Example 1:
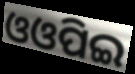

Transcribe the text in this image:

ଓଓପିଇ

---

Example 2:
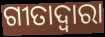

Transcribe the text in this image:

ଗୀତାଦ୍ଵାରା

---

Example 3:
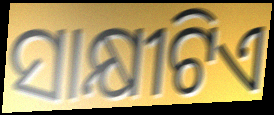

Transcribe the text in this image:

ସାକ୍ଷୀଟିଏ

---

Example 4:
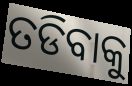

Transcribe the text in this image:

ତଡିବାକୁ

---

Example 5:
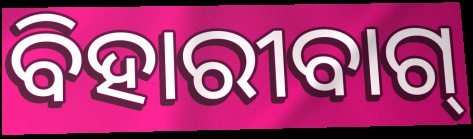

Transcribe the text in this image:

ବିହାରୀବାଗ୍